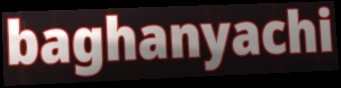
baghanyachi